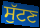
ਸੁੱਟਣ